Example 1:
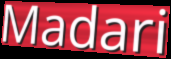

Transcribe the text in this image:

Madari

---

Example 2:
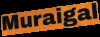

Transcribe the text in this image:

Muraigal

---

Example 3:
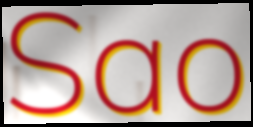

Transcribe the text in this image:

Sao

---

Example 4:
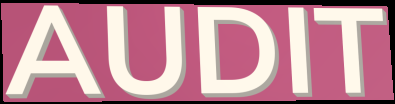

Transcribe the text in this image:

AUDIT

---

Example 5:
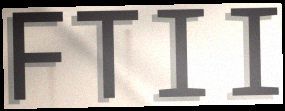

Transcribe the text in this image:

FTII